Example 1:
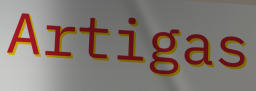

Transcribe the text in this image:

Artigas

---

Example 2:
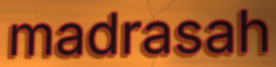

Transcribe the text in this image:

madrasah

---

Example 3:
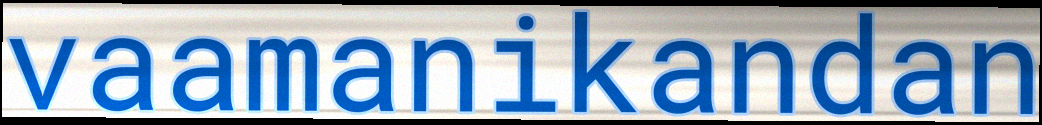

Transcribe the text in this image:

vaamanikandan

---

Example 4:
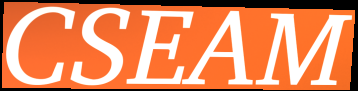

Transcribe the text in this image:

CSEAM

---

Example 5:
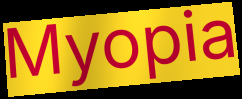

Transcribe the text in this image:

Myopia